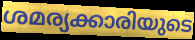
ശമര്യക്കാരിയുടെ